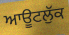
ਆਊਟਲੁੱਕ